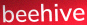
beehive